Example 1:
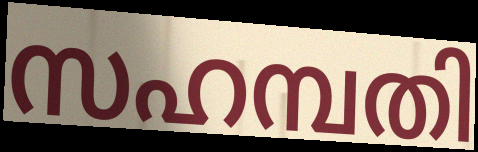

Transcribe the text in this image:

സഹമ്പതി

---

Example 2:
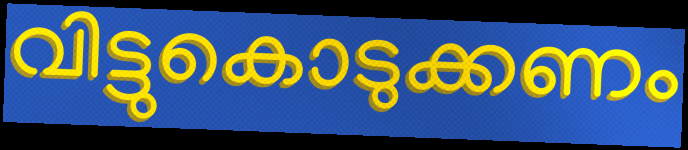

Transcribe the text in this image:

വിട്ടുകൊടുക്കണം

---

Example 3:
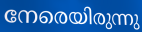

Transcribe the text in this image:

നേരെയിരുന്നു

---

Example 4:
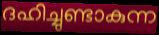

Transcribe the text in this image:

ദഹിച്ചുണ്ടാകുന്ന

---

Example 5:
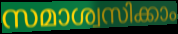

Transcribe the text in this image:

സമാശ്വസിക്കാം